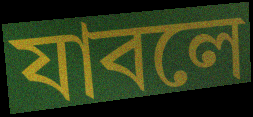
যাবলে